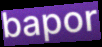
bapor